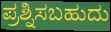
ಪ್ರಶ್ನಿಸಬಹುದು